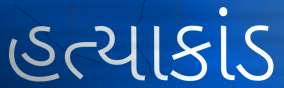
હત્યાકાંડ